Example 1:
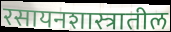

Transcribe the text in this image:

रसायनशास्त्रातील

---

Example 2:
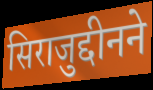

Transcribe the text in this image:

सिराजुद्दीनने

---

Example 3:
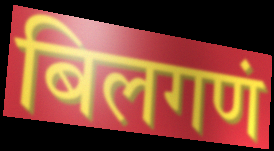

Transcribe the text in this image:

बिलगणं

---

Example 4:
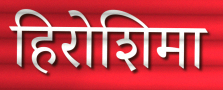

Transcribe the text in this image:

हिरोशिमा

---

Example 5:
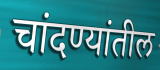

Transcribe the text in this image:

चांदण्यांतील